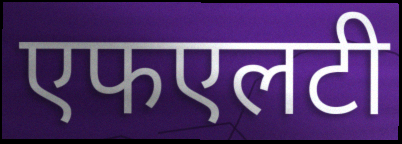
एफएलटी